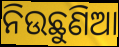
ନିଉଛୁଣିଆ